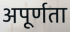
अपूर्णता